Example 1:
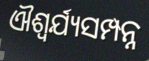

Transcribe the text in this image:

ଐଶ୍ୱର୍ଯ୍ୟସମ୍ପନ୍ନ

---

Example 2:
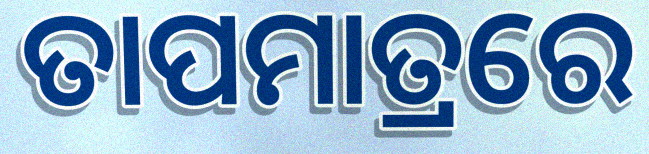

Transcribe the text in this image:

ତାପମାତ୍ରରେ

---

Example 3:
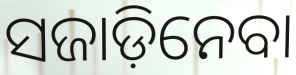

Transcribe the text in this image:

ସଜାଡ଼ିନେବା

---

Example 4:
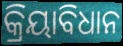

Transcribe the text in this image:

କ୍ରିୟାବିଧାନ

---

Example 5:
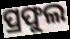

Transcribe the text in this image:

ପ୍ରଫୁଲ